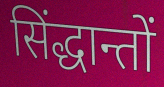
सिंद्धान्तों